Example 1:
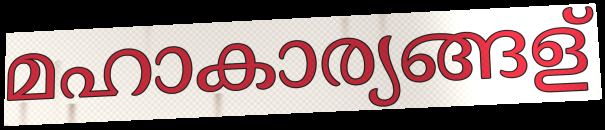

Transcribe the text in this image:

മഹാകാര്യങ്ങള്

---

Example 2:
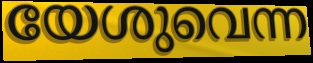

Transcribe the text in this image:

യേശുവെന്ന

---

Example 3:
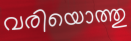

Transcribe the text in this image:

വരിയൊത്തു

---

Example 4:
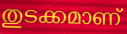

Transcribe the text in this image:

തുടക്കമാണ്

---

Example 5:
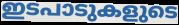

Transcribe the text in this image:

ഇടപാടുകളുടെ